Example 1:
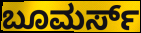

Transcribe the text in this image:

ಬೂಮರ್ಸ್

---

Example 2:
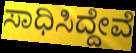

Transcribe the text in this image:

ಸಾಧಿಸಿದ್ದೇವೆ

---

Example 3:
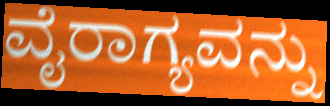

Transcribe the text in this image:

ವೈರಾಗ್ಯವನ್ನು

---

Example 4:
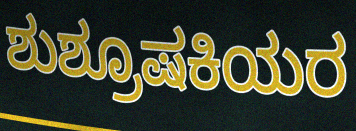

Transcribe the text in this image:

ಶುಶ್ರೂಷಕಿಯರ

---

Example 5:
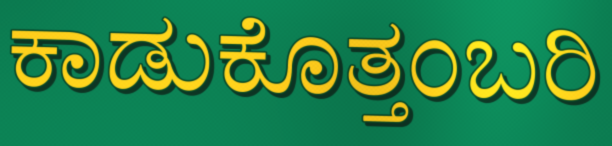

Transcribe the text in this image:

ಕಾಡುಕೊತ್ತಂಬರಿ